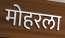
मोहरला